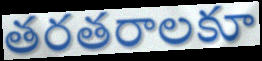
తరతరాలకూ